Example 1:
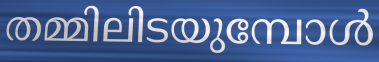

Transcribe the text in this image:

തമ്മിലിടയുമ്പോൾ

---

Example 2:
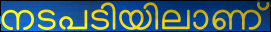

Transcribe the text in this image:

നടപടിയിലാണ്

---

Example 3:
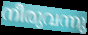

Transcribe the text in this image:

നീരുവന്നു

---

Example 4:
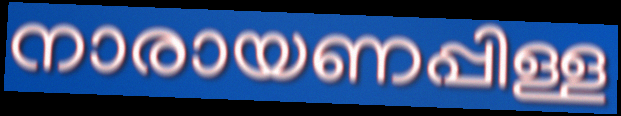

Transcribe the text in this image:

നാരായണപ്പിള്ള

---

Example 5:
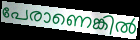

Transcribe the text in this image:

പേരാണെങ്കിൽ